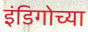
इंडिगोच्या